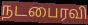
நடபைரவி